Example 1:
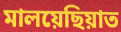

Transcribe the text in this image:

মালয়েছিয়াত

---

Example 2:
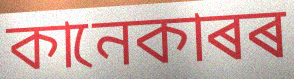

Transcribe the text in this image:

কানেকাৰৰ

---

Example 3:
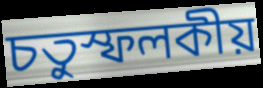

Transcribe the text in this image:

চতুস্ফলকীয়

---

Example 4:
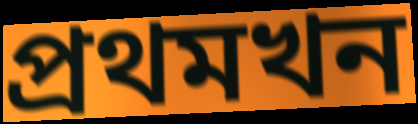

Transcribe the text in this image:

প্ৰথমখন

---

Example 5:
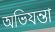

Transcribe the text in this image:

অভিযন্তা